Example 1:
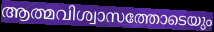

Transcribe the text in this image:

ആത്മവിശ്വാസത്തോടെയും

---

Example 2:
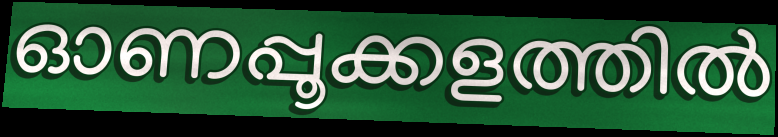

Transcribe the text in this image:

ഓണപ്പൂക്കളത്തിൽ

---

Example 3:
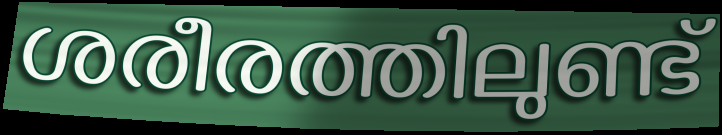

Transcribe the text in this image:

ശരീരത്തിലുണ്ട്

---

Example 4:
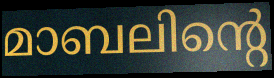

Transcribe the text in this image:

മാബലിന്റെ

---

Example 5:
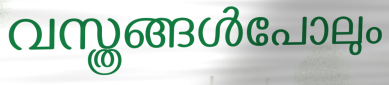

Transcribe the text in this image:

വസ്ത്രങ്ങൾപോലും